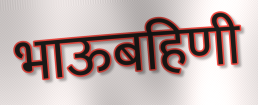
भाऊबहिणी